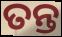
ତନ୍ତ